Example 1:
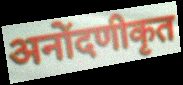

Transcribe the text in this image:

अनोंदणीकृत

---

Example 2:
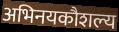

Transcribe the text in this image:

अभिनयकौशल्य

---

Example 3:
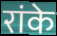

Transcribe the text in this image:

रांके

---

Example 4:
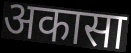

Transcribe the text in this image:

अकासा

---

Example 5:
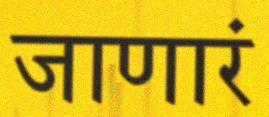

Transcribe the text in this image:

जाणारं